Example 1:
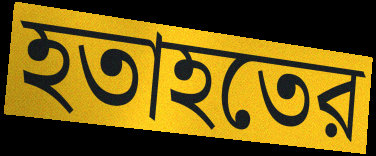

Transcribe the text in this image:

হতাহতের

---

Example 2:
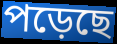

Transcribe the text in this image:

পড়েছে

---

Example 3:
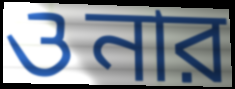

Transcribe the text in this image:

ওনার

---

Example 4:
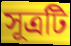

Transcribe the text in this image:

সূত্রটি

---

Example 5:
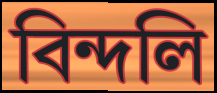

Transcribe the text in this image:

বিন্দলি